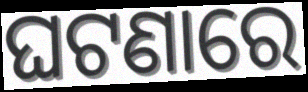
ଘଟଣାରେ